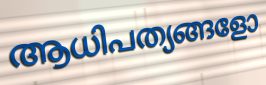
ആധിപത്യങ്ങളോ